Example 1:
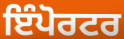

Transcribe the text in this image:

ਇੰਪੋਰਟਰ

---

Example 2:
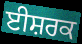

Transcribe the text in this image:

ਈਸ਼ਰਕ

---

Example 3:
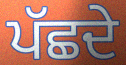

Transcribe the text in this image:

ਪੱਛਦੇ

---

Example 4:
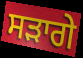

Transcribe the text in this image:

ਸੜਾਗੇ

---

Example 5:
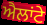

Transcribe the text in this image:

ਐਲਾਂਟੇ